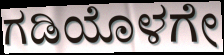
ಗಡಿಯೊಳಗೇ